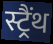
स्ट्रैंथ